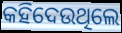
କହିଦେଉଥିଲେ